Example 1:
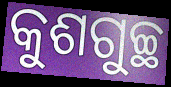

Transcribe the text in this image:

କୁଶଗୁଚ୍ଛ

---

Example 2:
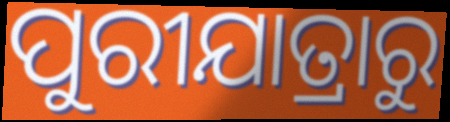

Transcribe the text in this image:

ପୁରୀଯାତ୍ରାରୁ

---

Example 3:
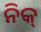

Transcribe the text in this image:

ନିକ୍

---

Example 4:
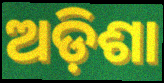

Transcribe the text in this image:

ଅଡ଼ିଶା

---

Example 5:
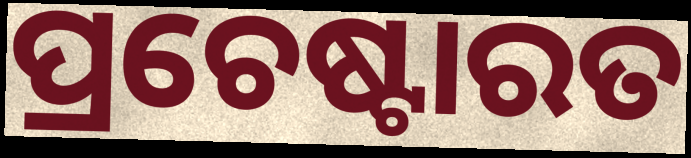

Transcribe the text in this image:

ପ୍ରଚେଷ୍ଟାରତ